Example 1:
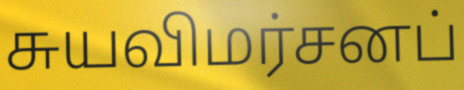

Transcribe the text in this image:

சுயவிமர்சனப்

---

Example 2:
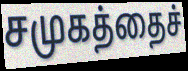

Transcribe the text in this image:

சமுகத்தைச்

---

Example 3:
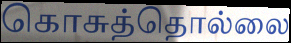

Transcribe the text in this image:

கொசுத்தொல்லை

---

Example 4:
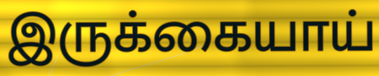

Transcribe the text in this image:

இருக்கையாய்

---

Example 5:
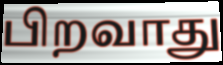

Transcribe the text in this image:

பிறவாது